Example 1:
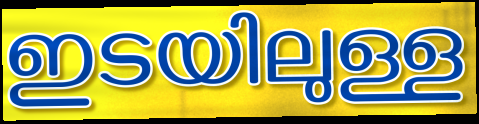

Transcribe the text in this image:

ഇടയിലുള്ള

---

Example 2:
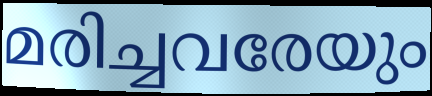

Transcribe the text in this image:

മരിച്ചവരേയും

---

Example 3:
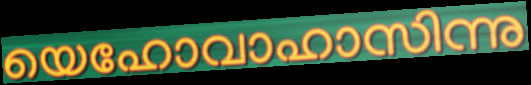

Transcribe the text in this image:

യെഹോവാഹാസിന്നു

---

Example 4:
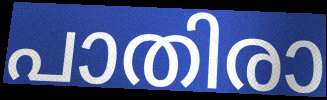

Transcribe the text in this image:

പാതിരാ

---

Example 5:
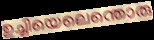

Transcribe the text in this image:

ഉച്ചിയെലെന്തൊരു